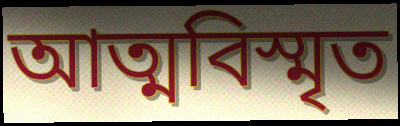
আত্মবিস্মৃত